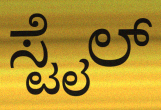
ಸ್ಟೈಲ್